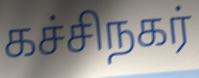
கச்சிநகர்